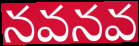
నవనవ